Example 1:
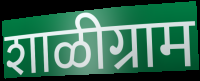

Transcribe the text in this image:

शाळीग्राम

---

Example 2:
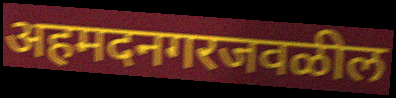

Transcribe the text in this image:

अहमदनगरजवळील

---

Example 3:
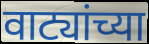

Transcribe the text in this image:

वाट्यांच्या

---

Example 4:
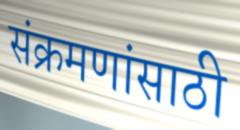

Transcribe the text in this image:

संक्रमणांसाठी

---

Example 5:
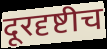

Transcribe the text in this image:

दूरदृष्टीच